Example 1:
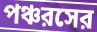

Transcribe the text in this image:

পঞ্চরসের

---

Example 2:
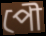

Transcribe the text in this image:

পৌ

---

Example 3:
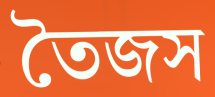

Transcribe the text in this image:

তৈজস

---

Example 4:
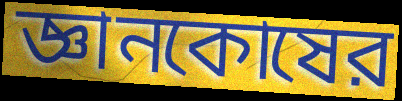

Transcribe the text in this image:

জ্ঞানকোষের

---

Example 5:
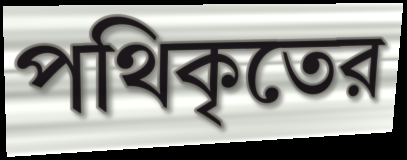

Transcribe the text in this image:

পথিকৃতের